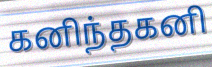
கனிந்தகனி